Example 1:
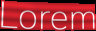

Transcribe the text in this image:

Lorem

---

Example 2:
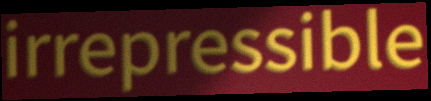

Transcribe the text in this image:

irrepressible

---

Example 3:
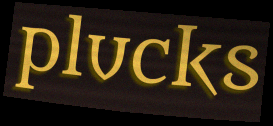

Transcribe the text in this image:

plucks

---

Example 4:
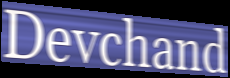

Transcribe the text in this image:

Devchand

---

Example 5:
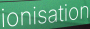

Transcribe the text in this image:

ionisation